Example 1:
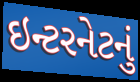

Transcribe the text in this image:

ઇન્ટરનેટનું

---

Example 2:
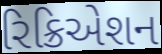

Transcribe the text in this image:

રિક્રિએશન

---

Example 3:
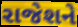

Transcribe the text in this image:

રાજેશને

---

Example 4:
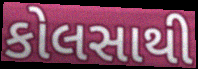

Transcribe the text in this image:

કોલસાથી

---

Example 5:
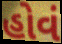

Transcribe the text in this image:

હોવં